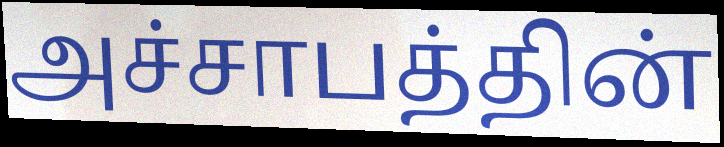
அச்சாபத்தின்